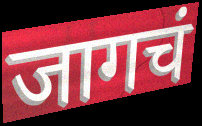
जागचं